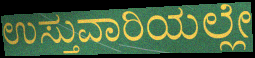
ಉಸ್ತುವಾರಿಯಲ್ಲೇ